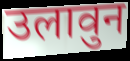
उलावुन